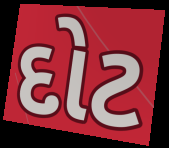
દોટ